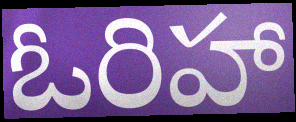
ఓరిహా